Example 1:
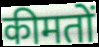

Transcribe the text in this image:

कीमतों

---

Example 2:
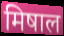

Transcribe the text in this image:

मिषाल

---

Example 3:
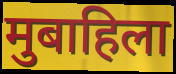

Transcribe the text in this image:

मुबाहिला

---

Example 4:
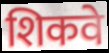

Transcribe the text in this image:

शिकवे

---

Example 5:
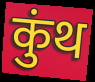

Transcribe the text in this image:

कुंथ